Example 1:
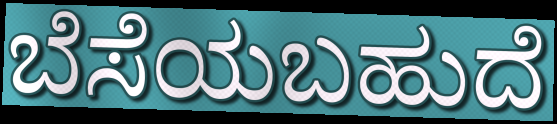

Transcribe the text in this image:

ಬೆಸೆಯಬಹುದೆ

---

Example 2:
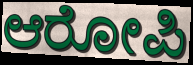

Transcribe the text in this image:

ಆರೋಪಿ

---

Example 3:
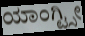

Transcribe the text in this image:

ಯಾಂಗ್ಟ್ಸೀ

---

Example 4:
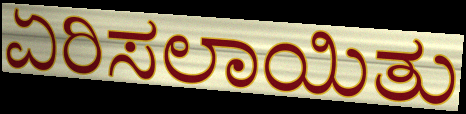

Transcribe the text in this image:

ಏರಿಸಲಾಯಿತು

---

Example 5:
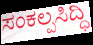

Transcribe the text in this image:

ಸಂಕಲ್ಪಸಿದ್ಧಿ